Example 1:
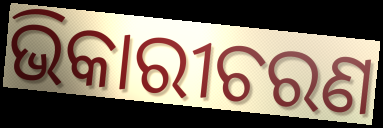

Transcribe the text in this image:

ଭିକାରୀଚରଣ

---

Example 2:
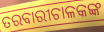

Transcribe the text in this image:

ତରବାରୀଚାଳକଙ୍କ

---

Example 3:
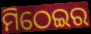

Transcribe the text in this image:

ମିଠେଇର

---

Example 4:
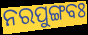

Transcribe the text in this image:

ନରପୁଙ୍ଗବଃ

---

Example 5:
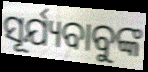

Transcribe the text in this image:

ସୂର୍ଯ୍ୟବାବୁଙ୍କ